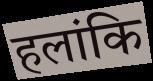
हलांकि